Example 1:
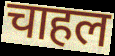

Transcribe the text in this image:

चाहल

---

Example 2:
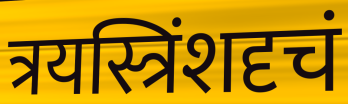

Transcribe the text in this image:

त्रयस्त्रिंशदृचं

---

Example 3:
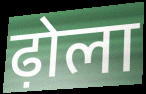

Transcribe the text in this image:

ढ़ोला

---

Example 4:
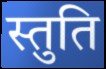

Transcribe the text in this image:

स्तुति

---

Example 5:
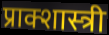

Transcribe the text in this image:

प्राक्शास्त्री